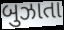
બુઝાતા